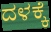
ದಳಕ್ಕೆ